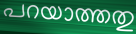
പറയാത്തതു